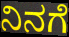
ನಿನಗೆ